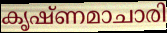
കൃഷ്ണമാചാരി